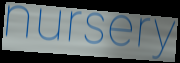
nursery